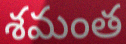
శమంత